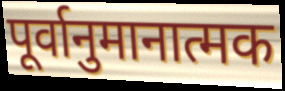
पूर्वानुमानात्मक